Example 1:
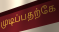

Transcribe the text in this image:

முடிப்பதற்கே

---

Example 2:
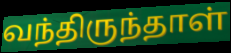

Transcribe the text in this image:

வந்திருந்தாள்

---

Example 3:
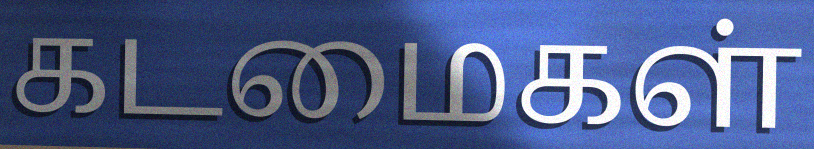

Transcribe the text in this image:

கடமைகள்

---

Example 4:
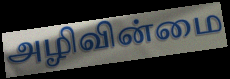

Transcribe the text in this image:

அழிவின்மை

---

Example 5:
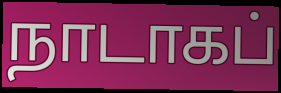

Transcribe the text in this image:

நாடாகப்